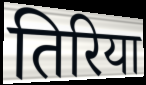
तिरिया